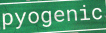
pyogenic